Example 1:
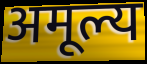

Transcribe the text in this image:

अमूल्य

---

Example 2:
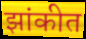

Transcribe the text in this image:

झांकीत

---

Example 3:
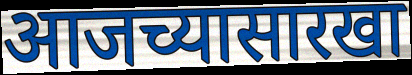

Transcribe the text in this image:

आजच्यासारखा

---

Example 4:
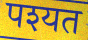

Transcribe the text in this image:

पश्यत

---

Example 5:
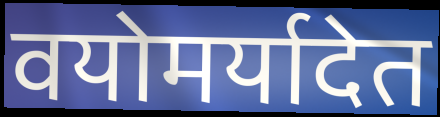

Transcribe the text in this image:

वयोमर्यादेत